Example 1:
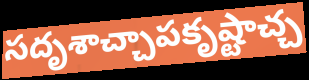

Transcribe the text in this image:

సదృశాచ్చాపకృష్టాచ్చ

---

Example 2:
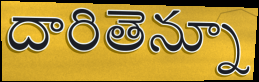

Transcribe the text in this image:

దారితెన్నూ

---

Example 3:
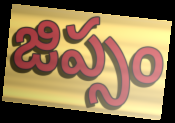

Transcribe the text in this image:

జిప్సం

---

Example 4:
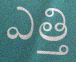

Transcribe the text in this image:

ఎత్తి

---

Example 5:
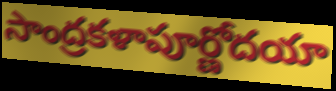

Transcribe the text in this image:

సాంద్రకళాపూర్ణోదయా